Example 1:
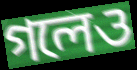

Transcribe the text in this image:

গলেও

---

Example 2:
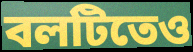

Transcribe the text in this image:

বলটিতেও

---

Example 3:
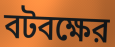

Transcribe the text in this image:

বটবক্ষের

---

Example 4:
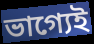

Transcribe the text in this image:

ভাগ্যেই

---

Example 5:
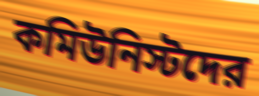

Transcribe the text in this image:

কমিউনিস্টদের